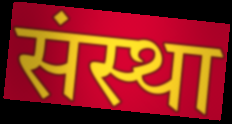
संस्‍था